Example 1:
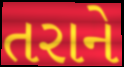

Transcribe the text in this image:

તરાને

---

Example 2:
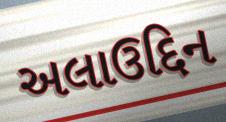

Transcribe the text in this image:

અલાઉદ્દિન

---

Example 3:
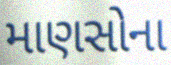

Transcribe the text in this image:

માણસોના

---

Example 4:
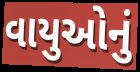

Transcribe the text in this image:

વાયુઓનું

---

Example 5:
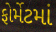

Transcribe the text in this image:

ફોર્મેટમાં